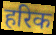
हरिक